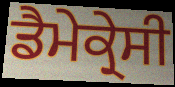
ਡੈਮੇਕ੍ਰੇਸੀ